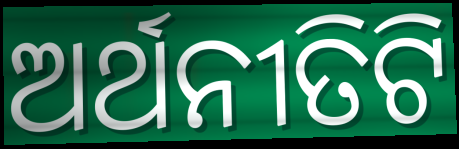
ଅର୍ଥନୀତିଟି